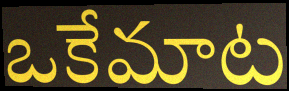
ఒకేమాట